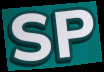
SP